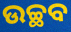
ଉଚ୍ଛବ